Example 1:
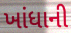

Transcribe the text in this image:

ખાંધાની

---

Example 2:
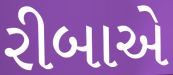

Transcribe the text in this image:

રીબાએ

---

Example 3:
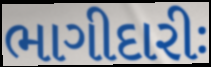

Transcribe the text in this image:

ભાગીદારીઃ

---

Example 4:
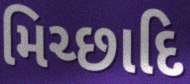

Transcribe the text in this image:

મિચ્છાદિ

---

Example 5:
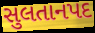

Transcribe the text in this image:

સુલતાનપદ